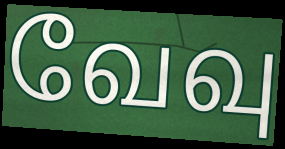
வேவு